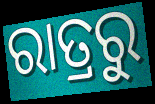
ରାତ୍ରରୁ